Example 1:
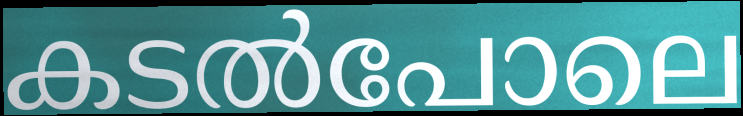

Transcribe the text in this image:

കടൽപോലെ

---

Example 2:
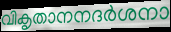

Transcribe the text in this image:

വികൃതാനനദർശനാ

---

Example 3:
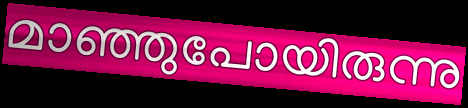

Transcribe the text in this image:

മാഞ്ഞുപോയിരുന്നു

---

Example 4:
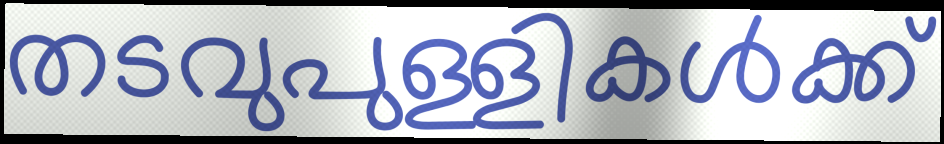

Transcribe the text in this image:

തടവുപുള്ളികൾക്ക്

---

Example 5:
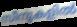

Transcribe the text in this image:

സീനുകളിൽ